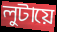
লুটায়ে